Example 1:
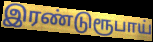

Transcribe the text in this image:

இரண்டுரூபாய்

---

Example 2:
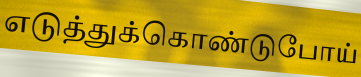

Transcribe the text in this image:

எடுத்துக்கொண்டுபோய்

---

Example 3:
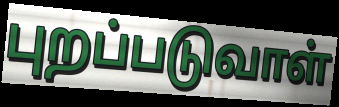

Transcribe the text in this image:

புறப்படுவாள்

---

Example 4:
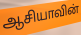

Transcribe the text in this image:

ஆசியாவின்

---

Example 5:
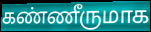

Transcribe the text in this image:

கண்ணீருமாக